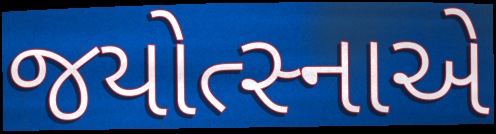
જયોત્સ્નાએ